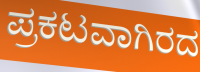
ಪ್ರಕಟವಾಗಿರದ